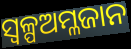
ସ୍ୱଳ୍ପଅମ୍ଳଜାନ